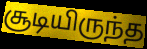
சூடியிருந்த